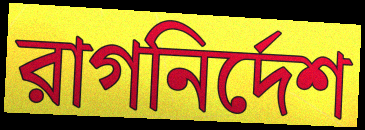
রাগনির্দেশ